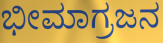
ಭೀಮಾಗ್ರಜನ